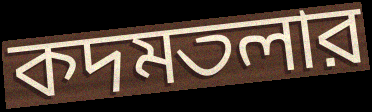
কদমতলার